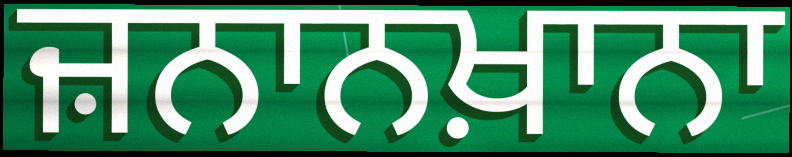
ਜ਼ਨਾਨਖ਼ਾਨਾ